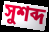
সুশব্দ